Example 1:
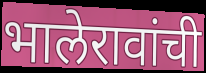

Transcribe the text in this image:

भालेरावांची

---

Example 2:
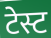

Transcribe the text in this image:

टेस्ट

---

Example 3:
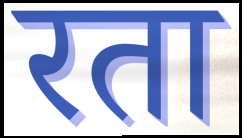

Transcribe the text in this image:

रता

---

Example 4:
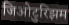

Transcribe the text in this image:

जिओटुरिझम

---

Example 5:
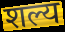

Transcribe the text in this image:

शल्य